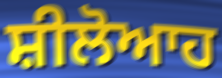
ਸ਼ੀਲੋਆਹ